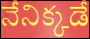
నేనిక్కడే